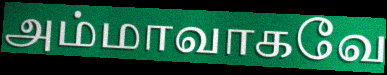
அம்மாவாகவே